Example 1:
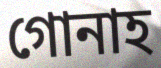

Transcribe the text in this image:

গোনাহ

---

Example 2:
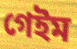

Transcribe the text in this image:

গেইম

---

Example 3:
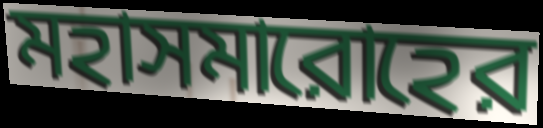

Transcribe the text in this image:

মহাসমারোহের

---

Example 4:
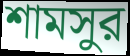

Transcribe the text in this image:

শামসুর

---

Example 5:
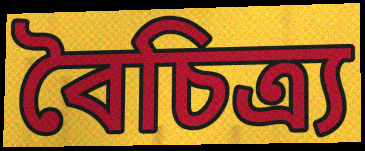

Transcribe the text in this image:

বৈচিত্র্য